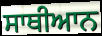
ਸਾਥੀਆਨ